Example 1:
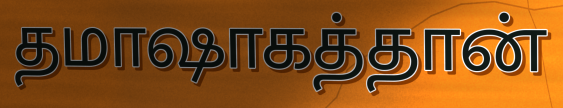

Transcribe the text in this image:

தமாஷாகத்தான்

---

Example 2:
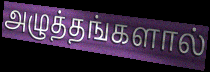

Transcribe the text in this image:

அழுத்தங்களால்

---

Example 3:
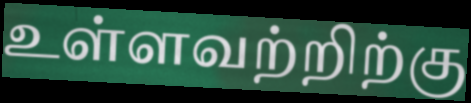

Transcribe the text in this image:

உள்ளவற்றிற்கு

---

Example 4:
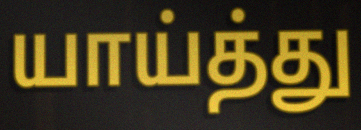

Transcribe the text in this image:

யாய்த்து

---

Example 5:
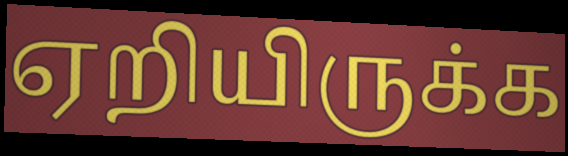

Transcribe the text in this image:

ஏறியிருக்க